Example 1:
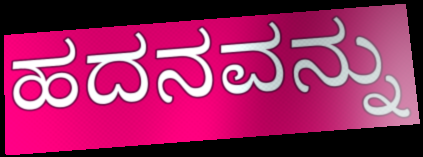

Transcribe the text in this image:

ಹದನವನ್ನು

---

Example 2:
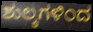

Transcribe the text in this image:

ಶುಲ್ಕಗಳಿಂದ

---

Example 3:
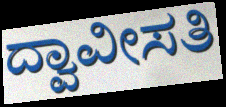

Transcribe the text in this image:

ದ್ವಾವೀಸತಿ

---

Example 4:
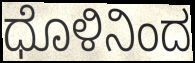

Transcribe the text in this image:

ಧೊಳಿನಿಂದ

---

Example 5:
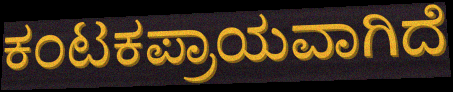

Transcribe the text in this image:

ಕಂಟಕಪ್ರಾಯವಾಗಿದೆ